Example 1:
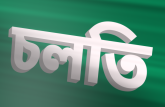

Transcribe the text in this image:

চলতি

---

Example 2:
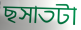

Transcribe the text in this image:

ছসাতটা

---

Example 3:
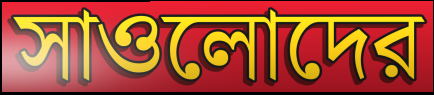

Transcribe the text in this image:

সাওলোদের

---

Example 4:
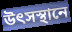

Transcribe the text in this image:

উৎসস্থানে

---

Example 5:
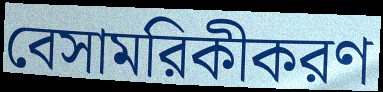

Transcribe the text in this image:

বেসামরিকীকরণ